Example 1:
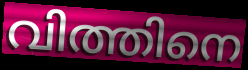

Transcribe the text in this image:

വിത്തിനെ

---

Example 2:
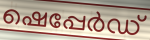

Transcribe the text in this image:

ഷെപ്പേർഡ്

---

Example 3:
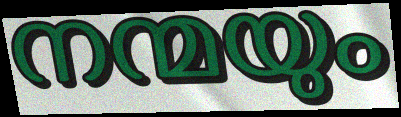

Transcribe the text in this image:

നന്മയും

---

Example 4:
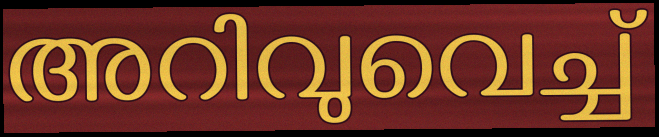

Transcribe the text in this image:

അറിവുവെച്ച്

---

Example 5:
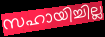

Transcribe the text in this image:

സഹായിച്ചില്ല